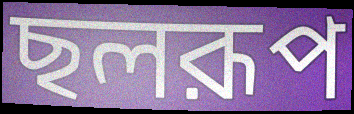
ছলরূপ